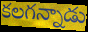
కలగన్నాడు